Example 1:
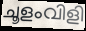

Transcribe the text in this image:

ചൂളംവിളി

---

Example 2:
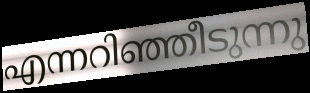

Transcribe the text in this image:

എന്നറിഞ്ഞീടുന്നു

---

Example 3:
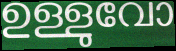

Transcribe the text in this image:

ഉള്ളുവോ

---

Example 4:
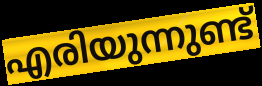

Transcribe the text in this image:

എരിയുന്നുണ്ട്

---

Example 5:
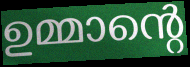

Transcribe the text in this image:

ഉമ്മാന്റെ